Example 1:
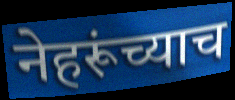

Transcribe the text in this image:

नेहरूंच्याच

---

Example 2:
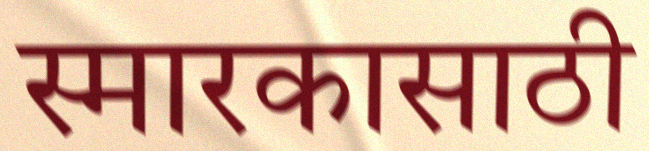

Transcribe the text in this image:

स्मारकासाठी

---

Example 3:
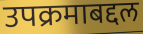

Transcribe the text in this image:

उपक्रमाबद्दल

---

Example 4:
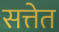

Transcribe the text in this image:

सत्तेत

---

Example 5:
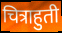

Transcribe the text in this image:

चित्राहुती